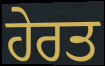
ਹੇਰਤ